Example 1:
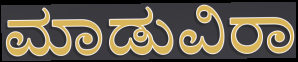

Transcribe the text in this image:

ಮಾಡುವಿರಾ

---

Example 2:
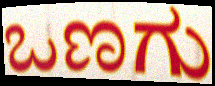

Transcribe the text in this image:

ಒಣಗು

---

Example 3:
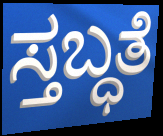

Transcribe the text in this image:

ಸ್ತಬ್ಧತೆ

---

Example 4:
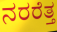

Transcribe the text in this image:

ನರರೆತ್ತ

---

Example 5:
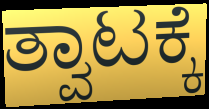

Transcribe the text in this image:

ತ್ವಾಟಕ್ಕೆ